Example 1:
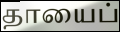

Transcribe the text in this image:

தாயைப்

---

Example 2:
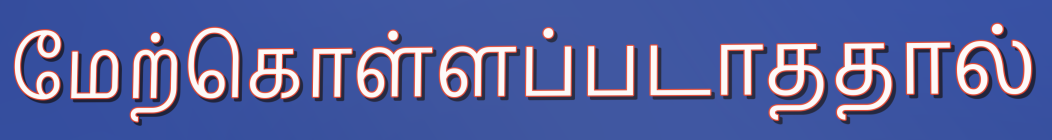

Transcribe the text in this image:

மேற்கொள்ளப்படாததால்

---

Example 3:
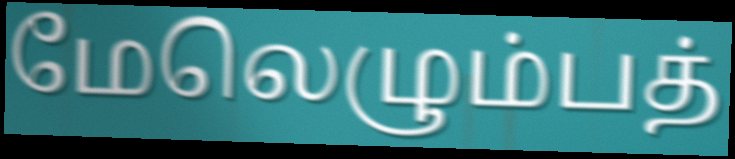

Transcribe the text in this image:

மேலெழும்பத்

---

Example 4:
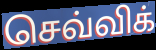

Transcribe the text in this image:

செவ்விக்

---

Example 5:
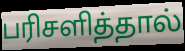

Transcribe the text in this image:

பரிசளித்தால்